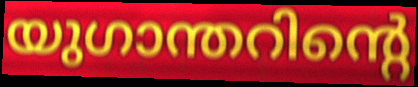
യുഗാന്തറിന്റെ